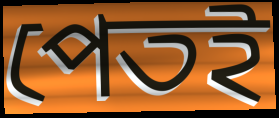
পেতই